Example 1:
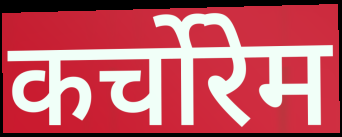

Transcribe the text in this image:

कर्चोरेम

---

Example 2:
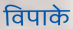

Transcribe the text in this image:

विपाके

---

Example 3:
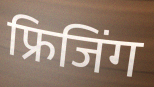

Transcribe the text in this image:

फ्रिजिंग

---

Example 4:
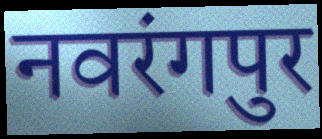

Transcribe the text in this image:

नवरंगपुर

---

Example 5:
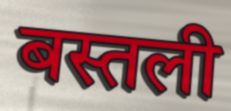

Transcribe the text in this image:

बस्तली